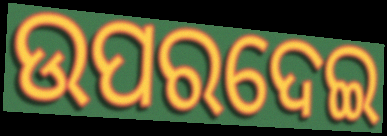
ଉପରଦେଇ